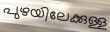
പുഴയിലേക്കുള്ള